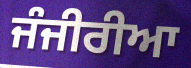
ਜੰਜੀਰੀਆ